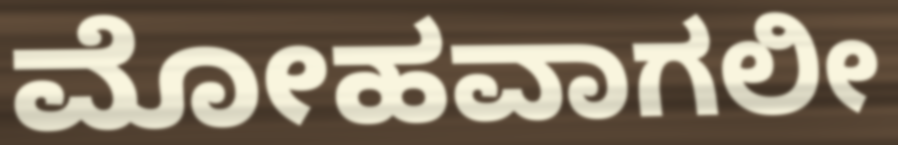
ಮೋಹವಾಗಲೀ